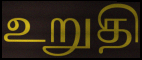
உறுதி